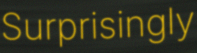
Surprisingly